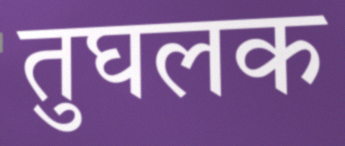
तुघलक